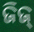
ଜିଜ୍